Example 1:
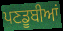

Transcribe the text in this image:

ਪਣਡੂਬੀਆਂ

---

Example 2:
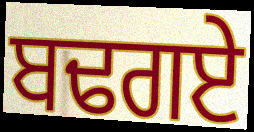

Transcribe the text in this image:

ਬਢਗਏ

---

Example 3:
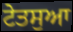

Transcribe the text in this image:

ਟੇਤਸੁਆ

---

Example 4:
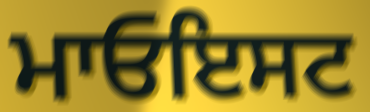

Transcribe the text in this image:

ਮਾਓਇਸਟ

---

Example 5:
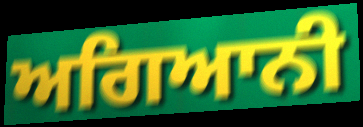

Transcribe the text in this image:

ਅਗਿਆਨੀ